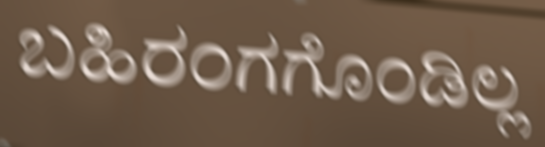
ಬಹಿರಂಗಗೊಂಡಿಲ್ಲ